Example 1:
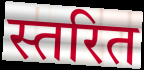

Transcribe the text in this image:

स्तरित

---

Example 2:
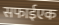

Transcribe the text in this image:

सफाईएक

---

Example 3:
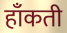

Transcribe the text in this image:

हाँकती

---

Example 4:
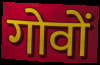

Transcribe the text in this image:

गोवों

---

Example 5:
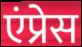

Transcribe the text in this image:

एंप्रेस